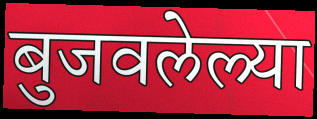
बुजवलेल्या